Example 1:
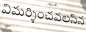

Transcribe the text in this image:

విమర్శించవలసిన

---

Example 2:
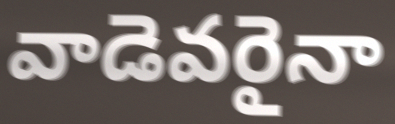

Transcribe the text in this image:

వాడెవరైనా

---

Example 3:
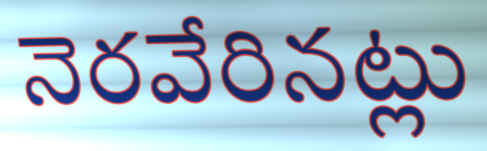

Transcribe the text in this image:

నెరవేరినట్లు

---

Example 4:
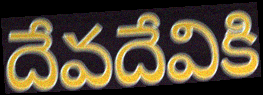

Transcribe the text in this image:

దేవదేవికి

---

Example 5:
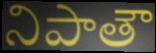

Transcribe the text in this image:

నిపాతౌ